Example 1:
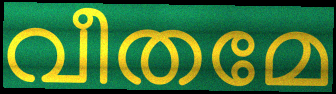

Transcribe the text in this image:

വീതമേ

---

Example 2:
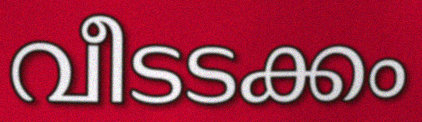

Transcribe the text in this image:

വീടടക്കം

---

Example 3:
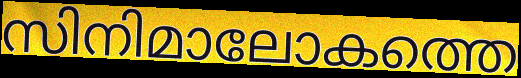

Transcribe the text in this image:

സിനിമാലോകത്തെ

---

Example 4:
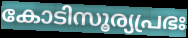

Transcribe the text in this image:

കോടിസൂര്യപ്രഭഃ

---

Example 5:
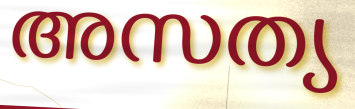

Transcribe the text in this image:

അസത്യ